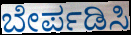
ಬೇರ್ಪಡಿಸಿ